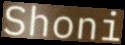
Shoni